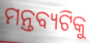
ମନ୍ତବ୍ୟଟିକୁ